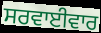
ਸਰਵਾਈਵਾਰ